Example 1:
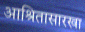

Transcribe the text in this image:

आश्रितासारखा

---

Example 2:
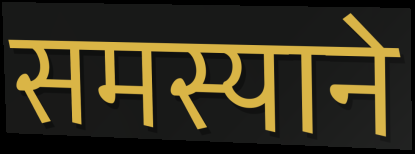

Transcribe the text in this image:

समस्याने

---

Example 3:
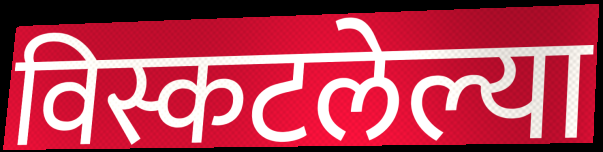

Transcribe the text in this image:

विस्कटलेल्या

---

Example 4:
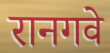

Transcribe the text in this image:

रानगवे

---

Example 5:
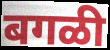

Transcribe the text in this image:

बगळी